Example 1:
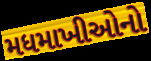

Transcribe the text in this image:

મધમાખીઓનો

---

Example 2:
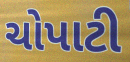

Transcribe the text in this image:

ચોપાટી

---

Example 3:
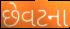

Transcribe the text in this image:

છેવટના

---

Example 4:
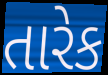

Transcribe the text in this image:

તારેક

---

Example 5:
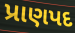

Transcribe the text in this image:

પ્રાણપદ